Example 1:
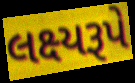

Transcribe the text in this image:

લક્ષ્યરૂપે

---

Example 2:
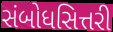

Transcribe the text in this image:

સંબોધસિત્તરી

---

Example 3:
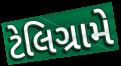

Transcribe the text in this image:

ટેલિગ્રામે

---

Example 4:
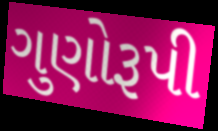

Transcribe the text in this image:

ગુણોરૂપી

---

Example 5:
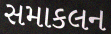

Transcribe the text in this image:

સમાકલન